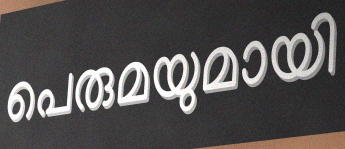
പെരുമയുമായി